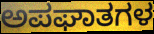
ಅಪಘಾತಗಳ